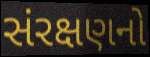
સંરક્ષણનો